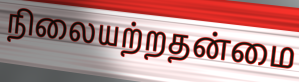
நிலையற்றதன்மை